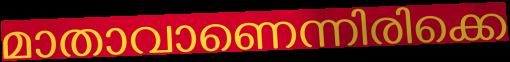
മാതാവാണെന്നിരിക്കെ